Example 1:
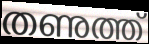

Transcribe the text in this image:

തണുത്ത്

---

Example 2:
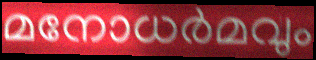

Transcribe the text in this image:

മനോധർമവും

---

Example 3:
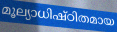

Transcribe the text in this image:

മൂല്യാധിഷ്ഠിതമായ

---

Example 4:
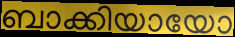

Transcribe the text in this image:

ബാക്കിയായോ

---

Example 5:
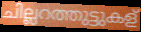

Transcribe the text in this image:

ചില്ലറത്തുട്ടുകള്